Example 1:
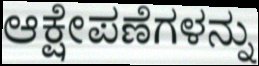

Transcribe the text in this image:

ಆಕ್ಷೇಪಣೆಗಳನ್ನು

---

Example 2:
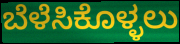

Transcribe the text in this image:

ಬೆಳೆಸಿಕೊಳ್ಳಲು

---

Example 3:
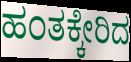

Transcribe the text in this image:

ಹಂತಕ್ಕೇರಿದ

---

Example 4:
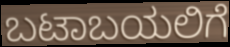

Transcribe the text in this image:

ಬಟಾಬಯಲಿಗೆ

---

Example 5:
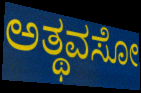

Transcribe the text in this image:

ಅತ್ಥವಸೋ